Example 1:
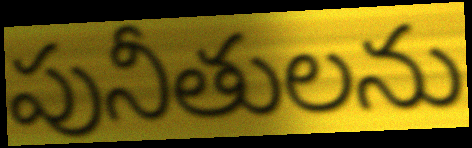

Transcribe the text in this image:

పునీతులను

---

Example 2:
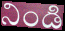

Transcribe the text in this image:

నిండి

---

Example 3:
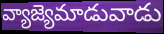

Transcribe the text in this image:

వ్యాజ్యెమాడువాడు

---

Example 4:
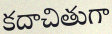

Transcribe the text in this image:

కదాచితుగా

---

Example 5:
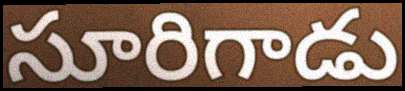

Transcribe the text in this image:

సూరిగాడు